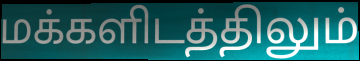
மக்களிடத்திலும்